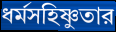
ধর্মসহিষ্ণুতার